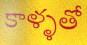
కాళ్ళతో